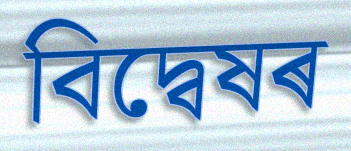
বিদ্বেষৰ